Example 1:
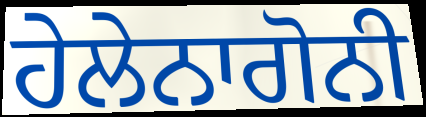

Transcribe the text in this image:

ਹੇਲੇਨਾਗੋਨੀ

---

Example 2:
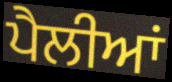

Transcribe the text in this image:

ਪੈਲੀਆਂ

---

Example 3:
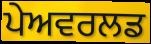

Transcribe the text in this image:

ਪੇਅਵਰਲਡ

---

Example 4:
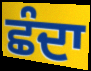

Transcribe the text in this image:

ਛੰਦਾ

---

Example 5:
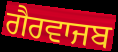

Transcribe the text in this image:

ਗੈਰਵਾਜਬ